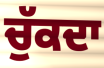
ਚੁੱਕਦਾ